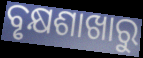
ବୃକ୍ଷଶାଖାରୁ